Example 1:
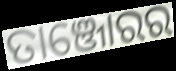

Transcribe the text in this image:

ତାଞ୍ଜୋରର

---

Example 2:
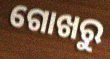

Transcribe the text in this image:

ଗୋଖରୁ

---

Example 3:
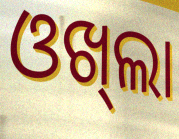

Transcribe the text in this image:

ଓଖ୍‌ଲା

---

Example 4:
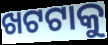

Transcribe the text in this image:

ଖଟଟାକୁ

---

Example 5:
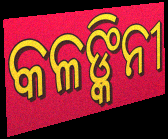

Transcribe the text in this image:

କଳଙ୍କିନୀ